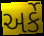
અર્કે